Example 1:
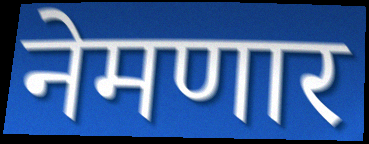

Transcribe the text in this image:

नेमणार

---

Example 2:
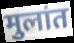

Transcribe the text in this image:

मुलांत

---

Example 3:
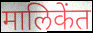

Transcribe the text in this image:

मालिकेंत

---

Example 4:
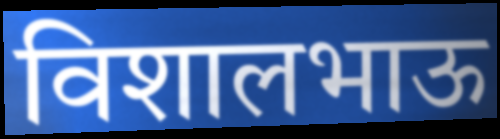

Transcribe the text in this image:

विशालभाऊ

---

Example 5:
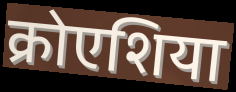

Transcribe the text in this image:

क्रोएशिया